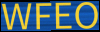
WFEO